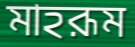
মাহরূম